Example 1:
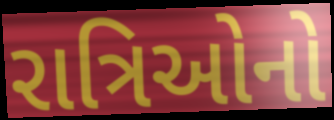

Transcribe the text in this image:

રાત્રિઓનો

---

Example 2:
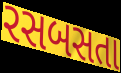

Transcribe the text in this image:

રસબસતા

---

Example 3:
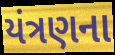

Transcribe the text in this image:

યંત્રણના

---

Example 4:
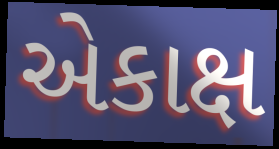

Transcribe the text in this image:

એકાક્ષ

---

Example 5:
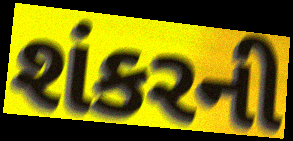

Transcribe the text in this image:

શંકરની